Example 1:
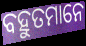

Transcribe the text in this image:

ବହୁତମାନେ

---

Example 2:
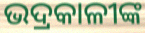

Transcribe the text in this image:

ଭଦ୍ରକାଳୀଙ୍କ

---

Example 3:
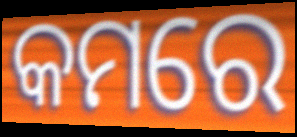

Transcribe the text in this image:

କମରେ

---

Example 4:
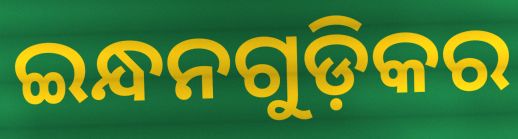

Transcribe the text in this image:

ଇନ୍ଧନଗୁଡ଼ିକର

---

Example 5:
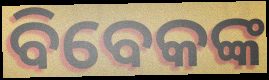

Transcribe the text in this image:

ବିବେକଙ୍କ